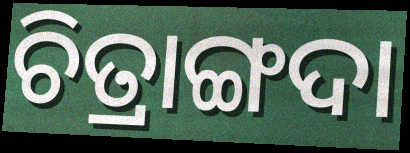
ଚିତ୍ରାଙ୍ଗଦା